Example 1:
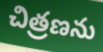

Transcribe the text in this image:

చిత్రణను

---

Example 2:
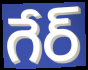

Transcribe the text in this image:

గేర్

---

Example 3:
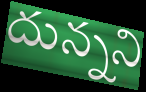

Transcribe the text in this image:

దున్నని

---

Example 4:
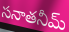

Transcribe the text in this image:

సనాతనీమ్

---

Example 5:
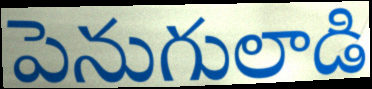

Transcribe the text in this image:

పెనుగులాడి